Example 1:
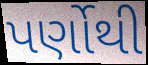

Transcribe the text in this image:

પર્ણોથી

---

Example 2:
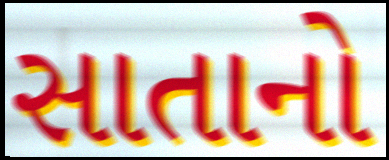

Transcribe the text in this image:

સાતાનો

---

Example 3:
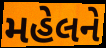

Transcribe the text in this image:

મહેલને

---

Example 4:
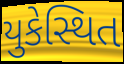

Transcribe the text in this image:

યુકેસ્થિત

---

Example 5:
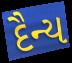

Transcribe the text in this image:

દૈન્ય